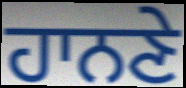
ਹਾਨਣੇ